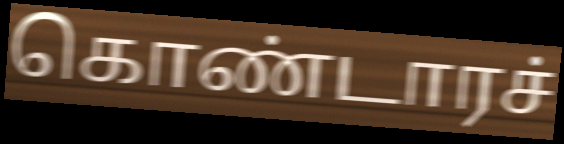
கொண்டாரச்